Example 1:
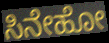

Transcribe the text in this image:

ಸಿನೇಹೋ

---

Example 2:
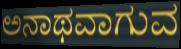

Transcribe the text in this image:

ಅನಾಥವಾಗುವ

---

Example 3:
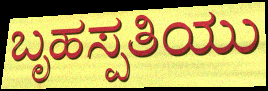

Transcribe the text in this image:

ಬೃಹಸ್ಪತಿಯು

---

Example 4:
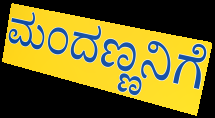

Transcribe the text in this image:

ಮಂದಣ್ಣನಿಗೆ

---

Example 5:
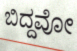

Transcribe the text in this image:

ಬಿದ್ದವೋ